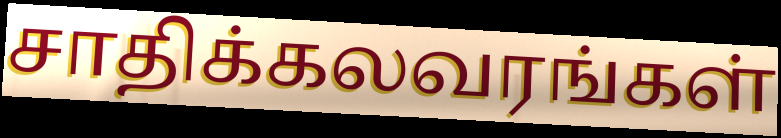
சாதிக்கலவரங்கள்